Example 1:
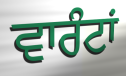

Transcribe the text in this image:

ਵਾਰੰਟਾਂ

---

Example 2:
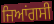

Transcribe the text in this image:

ਜਿਆਂਗਸੀ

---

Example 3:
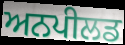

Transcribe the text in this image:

ਅਨਪੀਲਡ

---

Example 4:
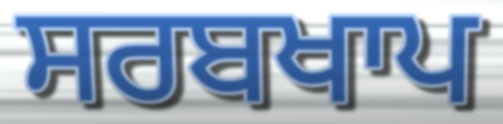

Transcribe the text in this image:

ਸਰਬਖਾਪ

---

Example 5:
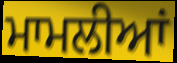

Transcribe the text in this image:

ਮਾਮਲੀਆਂ